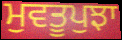
ਮੁਵਤੂਪੁਝਾ